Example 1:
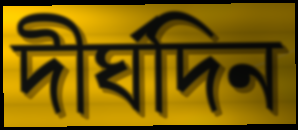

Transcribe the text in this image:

দীর্ঘদিন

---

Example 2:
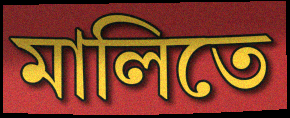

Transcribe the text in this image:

মালিতে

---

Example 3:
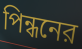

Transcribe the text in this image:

পিন্ধনের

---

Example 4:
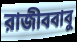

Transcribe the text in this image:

রাজীববাবু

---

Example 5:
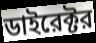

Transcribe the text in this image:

ডাইরেক্টর